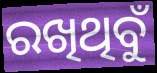
ରଖିଥିବୁଁ